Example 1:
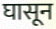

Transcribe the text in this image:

घासून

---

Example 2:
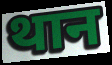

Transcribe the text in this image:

थान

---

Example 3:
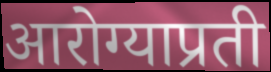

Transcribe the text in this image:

आरोग्याप्रती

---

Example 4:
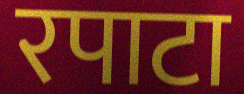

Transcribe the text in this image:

रपाटा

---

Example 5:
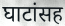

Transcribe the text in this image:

घाटांसह